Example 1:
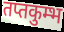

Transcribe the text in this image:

तप्तकुम्भ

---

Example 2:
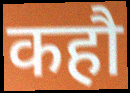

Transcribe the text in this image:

कहौ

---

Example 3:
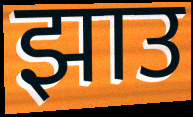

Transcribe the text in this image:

झाउ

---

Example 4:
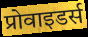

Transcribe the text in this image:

प्रोवाइडर्स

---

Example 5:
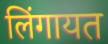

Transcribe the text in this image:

लिंगायत